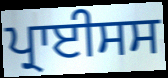
ਪ੍ਰਾਈਸਸ